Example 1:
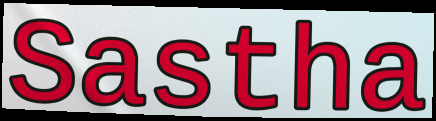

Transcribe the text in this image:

Sastha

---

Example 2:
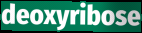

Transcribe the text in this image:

deoxyribose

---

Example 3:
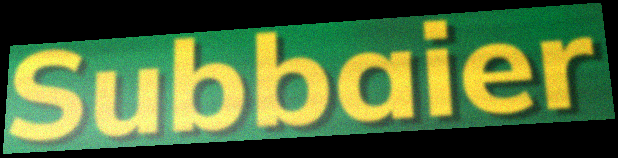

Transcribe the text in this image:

Subbaier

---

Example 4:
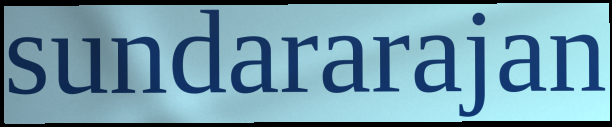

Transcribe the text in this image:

sundararajan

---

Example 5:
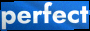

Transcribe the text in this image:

perfect